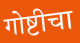
गोष्टीचा